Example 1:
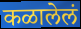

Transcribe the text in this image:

कळालेलं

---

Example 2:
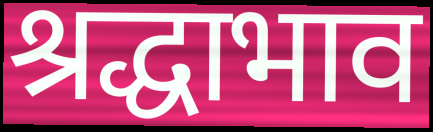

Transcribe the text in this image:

श्रद्धाभाव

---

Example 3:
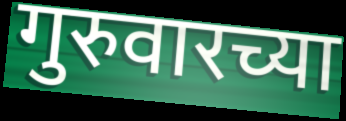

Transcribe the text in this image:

गुरुवारच्या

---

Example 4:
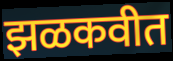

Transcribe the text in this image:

झळकवीत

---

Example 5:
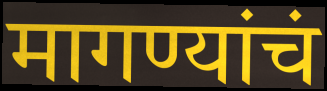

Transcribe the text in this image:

मागण्यांचं